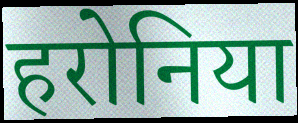
हरोनिया